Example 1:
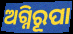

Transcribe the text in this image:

ଅଗ୍ନିରୂପା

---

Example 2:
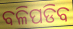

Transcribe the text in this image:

ବଳିପଡିବ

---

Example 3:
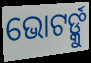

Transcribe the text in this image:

ଭୋଟର୍ଙ୍କୁ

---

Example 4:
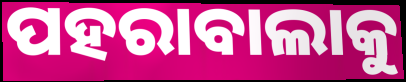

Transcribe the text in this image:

ପହରାବାଲାକୁ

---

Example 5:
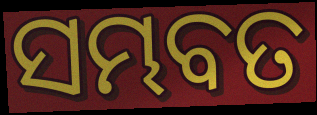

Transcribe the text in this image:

ସମ୍ଭବତ